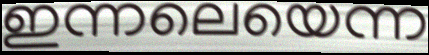
ഇന്നലെയെന്ന